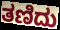
ತಣಿದು